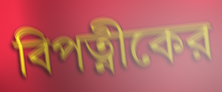
বিপত্নীকের